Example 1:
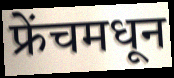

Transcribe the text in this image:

फ्रेंचमधून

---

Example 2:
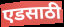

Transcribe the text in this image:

एडसाठी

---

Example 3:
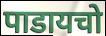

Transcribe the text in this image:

पाडायचो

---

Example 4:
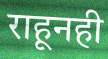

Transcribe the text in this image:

राहूनही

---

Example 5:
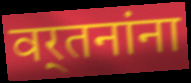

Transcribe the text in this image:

वर्तनांना